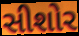
સીશોર